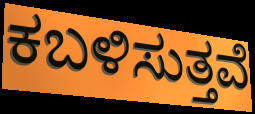
ಕಬಳಿಸುತ್ತವೆ